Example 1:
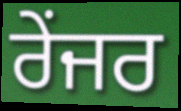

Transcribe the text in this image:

ਰੇਂਜਰ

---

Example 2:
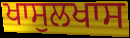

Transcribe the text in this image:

ਖਾਸੁਲਖਾਸ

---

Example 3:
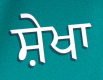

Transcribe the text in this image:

ਸ਼ੇਖਾ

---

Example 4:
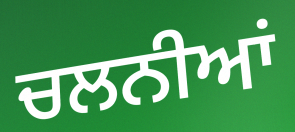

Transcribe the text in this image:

ਚਲਨੀਆਂ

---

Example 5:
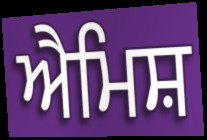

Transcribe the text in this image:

ਐਮਿਸ਼